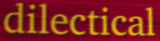
dilectical